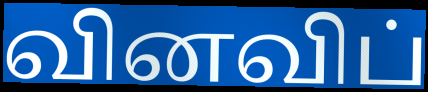
வினவிப்